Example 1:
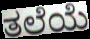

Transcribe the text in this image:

ತಲೆಯೆ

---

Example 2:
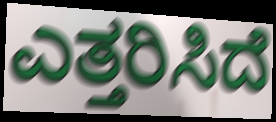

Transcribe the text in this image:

ಎತ್ತರಿಸಿದೆ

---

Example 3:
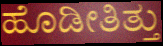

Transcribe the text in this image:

ಹೊಡೀತಿತ್ತು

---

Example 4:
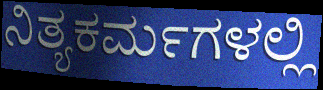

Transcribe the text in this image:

ನಿತ್ಯಕರ್ಮಗಳಲ್ಲಿ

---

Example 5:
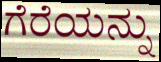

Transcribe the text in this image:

ಗೆರೆಯನ್ನು